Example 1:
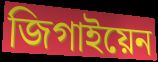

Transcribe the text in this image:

জিগাইয়েন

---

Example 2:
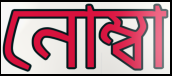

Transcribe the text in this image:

নোম্বা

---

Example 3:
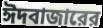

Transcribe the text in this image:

ঈদবাজারের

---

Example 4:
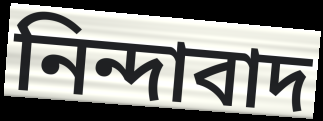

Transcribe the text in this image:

নিন্দাবাদ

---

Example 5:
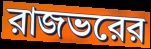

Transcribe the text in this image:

রাজভরের